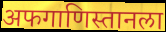
अफगाणिस्तानला